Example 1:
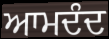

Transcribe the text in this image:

ਆਮਦੰਦ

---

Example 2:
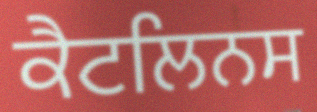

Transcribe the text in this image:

ਕੈਟਲਿਨਸ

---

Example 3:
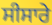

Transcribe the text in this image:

ਸੀਸਾਰੇ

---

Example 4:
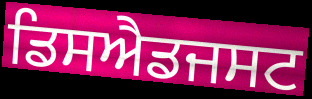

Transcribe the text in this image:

ਡਿਸਐਡਜਸਟ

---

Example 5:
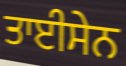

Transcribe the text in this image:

ਤਾਈਸੇਨ